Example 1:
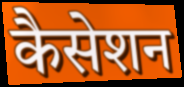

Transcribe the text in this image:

कैसेशन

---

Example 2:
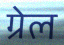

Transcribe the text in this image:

ग्रेल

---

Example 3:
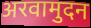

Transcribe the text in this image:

अरवामुदन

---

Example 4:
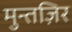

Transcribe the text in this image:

मुन्तज़िर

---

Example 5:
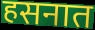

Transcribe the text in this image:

हसनात